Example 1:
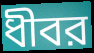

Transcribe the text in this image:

ধীবর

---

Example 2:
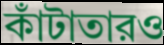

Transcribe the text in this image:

কাঁটাতারও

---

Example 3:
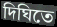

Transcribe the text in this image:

দিঘিতে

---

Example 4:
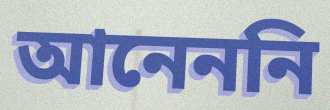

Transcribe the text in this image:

আনেননি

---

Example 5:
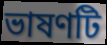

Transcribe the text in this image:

ভাষণটি